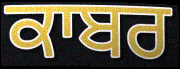
ਕਾਬਰ